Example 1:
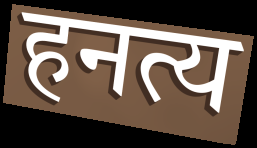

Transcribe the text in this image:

हनत्य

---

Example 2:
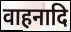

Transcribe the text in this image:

वाहनादि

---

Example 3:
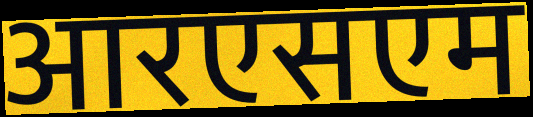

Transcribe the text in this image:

आरएसएम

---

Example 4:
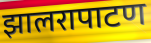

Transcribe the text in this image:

झालरापाटण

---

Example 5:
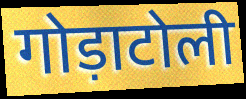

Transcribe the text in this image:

गोड़ाटोली